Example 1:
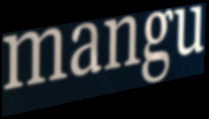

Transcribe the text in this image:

mangu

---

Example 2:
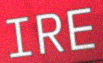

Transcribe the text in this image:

IRE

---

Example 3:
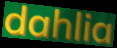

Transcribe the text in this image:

dahlia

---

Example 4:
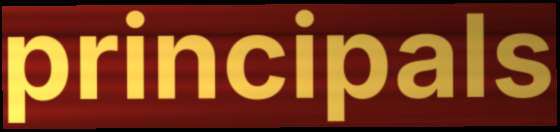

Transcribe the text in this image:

principals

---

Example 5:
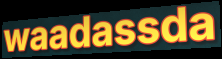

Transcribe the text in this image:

waadassda